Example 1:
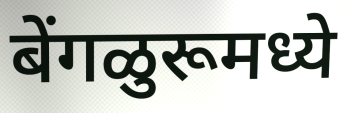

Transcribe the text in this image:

बेंगळुरूमध्ये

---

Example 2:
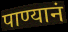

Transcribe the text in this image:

पाण्यानं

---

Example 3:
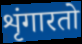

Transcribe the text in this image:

शृंगारतो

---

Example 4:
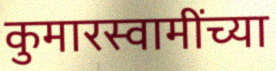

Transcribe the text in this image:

कुमारस्वामींच्या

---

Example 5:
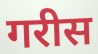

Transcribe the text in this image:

गरीस